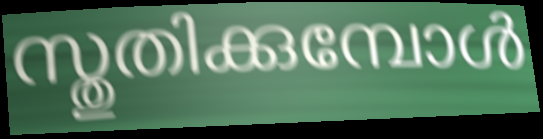
സ്തുതിക്കുമ്പോൾ